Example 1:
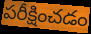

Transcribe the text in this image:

పరీక్షించడం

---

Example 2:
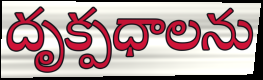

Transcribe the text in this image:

దృక్పధాలను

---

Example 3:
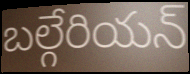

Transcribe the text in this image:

బల్గేరియన్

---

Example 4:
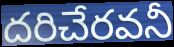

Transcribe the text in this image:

దరిచేరవనీ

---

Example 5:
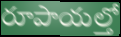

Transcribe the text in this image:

రూపాయల్తో